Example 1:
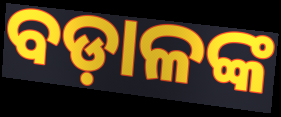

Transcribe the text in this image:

ବଡ଼ାଳଙ୍କ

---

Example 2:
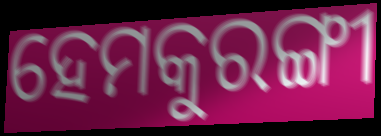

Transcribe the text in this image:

ହେମକୁରଙ୍ଗୀ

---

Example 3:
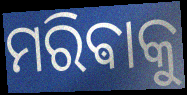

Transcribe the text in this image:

ମରିଵାକୁ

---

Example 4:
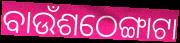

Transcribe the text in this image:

ବାଉଁଶଠେଙ୍ଗାଟା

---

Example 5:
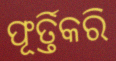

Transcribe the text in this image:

ଫୂର୍ତ୍ତିକରି